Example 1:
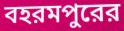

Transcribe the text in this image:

বহরমপুরের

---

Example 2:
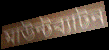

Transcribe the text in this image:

মাউন্টব্যাটন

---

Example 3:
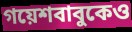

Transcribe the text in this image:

গয়েশবাবুকেও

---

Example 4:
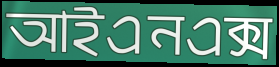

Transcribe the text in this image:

আইএনএক্স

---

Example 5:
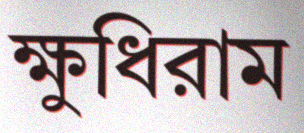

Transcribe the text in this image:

ক্ষুধিরাম